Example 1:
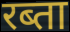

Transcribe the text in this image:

रब्ता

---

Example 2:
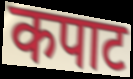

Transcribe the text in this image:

कपाट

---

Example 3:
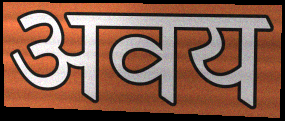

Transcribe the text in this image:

अवय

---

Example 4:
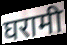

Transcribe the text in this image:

घरामी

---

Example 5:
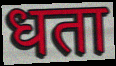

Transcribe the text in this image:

धता